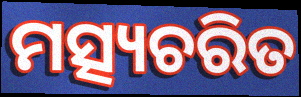
ମତ୍ସ୍ୟଚରିତ